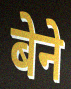
बेने